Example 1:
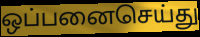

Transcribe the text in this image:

ஒப்பனைசெய்து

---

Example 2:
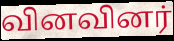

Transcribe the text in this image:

வினவினர்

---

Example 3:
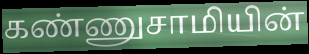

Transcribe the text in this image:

கண்ணுசாமியின்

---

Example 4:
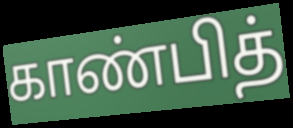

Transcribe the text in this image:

காண்பித்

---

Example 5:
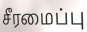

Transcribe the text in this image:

சீரமைப்பு